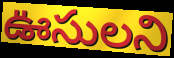
ఊసులని